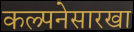
कल्पनेसारखा